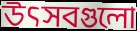
উৎসবগুলো